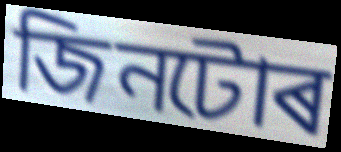
জিনটোৰ